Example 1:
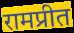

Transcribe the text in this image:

रामप्रीत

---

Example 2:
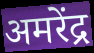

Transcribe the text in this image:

अमरेंद्र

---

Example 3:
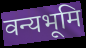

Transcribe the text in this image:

वन्यभूमि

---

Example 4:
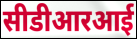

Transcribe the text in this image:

सीडीआरआई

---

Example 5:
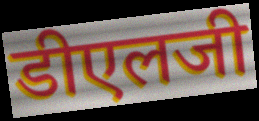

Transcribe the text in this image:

डीएलजी